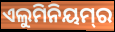
ଏଲୁମିନିୟମ୍‌ର